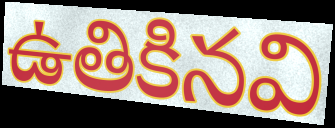
ఉతికినవి